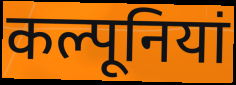
कल्पूनियां